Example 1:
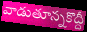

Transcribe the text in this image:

వాడుతూన్నకొద్దీ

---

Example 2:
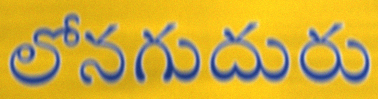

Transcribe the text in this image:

లోనగుదురు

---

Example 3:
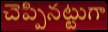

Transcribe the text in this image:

చెప్పినట్టుగా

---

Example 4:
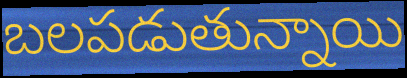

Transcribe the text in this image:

బలపడుతున్నాయి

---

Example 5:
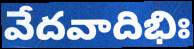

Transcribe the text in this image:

వేదవాదిభిః